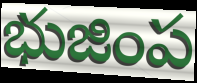
భుజింప